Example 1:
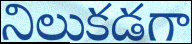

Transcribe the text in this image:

నిలుకడగా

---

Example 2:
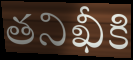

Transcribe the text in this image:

తనిఖీకి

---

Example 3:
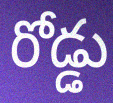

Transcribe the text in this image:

రోడ్డు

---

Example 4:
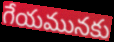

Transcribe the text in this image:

గేయమునకు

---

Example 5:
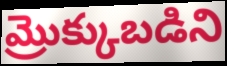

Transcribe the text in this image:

మ్రొక్కుబడిని